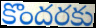
కొందరకు